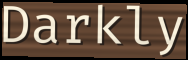
Darkly